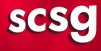
scsg